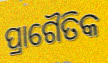
ପ୍ରାଗୈତିକ